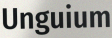
Unguium